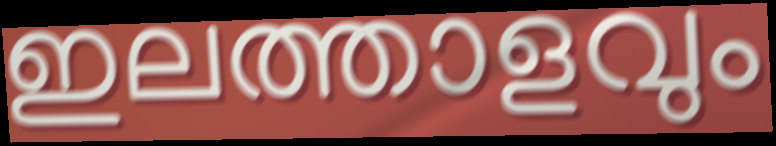
ഇലത്താളവും